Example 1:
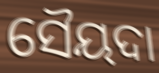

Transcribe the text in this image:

ସୈୟଦା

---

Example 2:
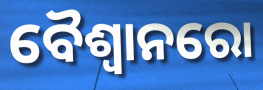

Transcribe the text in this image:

ବୈଶ୍ୱାନରୋ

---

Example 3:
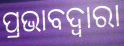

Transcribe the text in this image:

ପ୍ରଭାବଦ୍ୱାରା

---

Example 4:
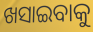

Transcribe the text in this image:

ଖସାଇବାକୁ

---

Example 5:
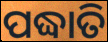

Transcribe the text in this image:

ପଦ୍ଧାତି